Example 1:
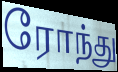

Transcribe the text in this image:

ரோந்து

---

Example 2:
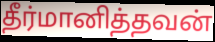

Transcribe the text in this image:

தீர்மானித்தவன்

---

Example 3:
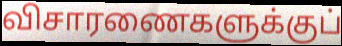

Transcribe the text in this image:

விசாரணைகளுக்குப்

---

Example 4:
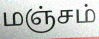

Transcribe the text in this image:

மஞ்சம்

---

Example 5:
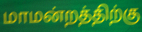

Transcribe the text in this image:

மாமன்றத்திற்கு